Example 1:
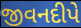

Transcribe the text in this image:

જીવનદીપે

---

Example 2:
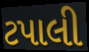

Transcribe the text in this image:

ટપાલી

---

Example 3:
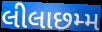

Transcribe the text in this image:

લીલાછમ્મ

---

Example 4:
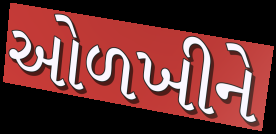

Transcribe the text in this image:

ઓળખીને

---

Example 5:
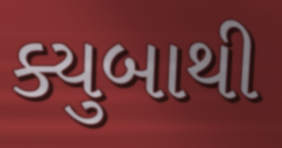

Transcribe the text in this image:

ક્યુબાથી